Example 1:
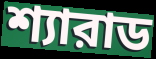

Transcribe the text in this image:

শ্যারাড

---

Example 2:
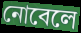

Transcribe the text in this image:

নোবেলে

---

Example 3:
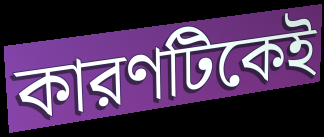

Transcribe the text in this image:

কারণটিকেই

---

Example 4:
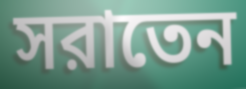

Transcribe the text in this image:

সরাতেন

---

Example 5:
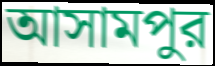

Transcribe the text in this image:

আসামপুর